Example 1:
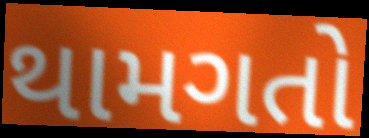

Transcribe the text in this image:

થામગતો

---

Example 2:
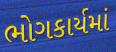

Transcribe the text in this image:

ભોગકાર્યમાં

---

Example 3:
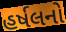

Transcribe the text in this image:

હર્ષલનો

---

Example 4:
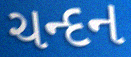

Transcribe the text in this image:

ચન્દન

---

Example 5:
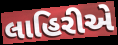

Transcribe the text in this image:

લાહિરીએ